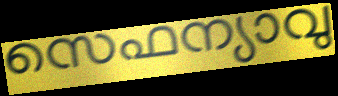
സെഫന്യാവു